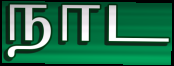
நாட